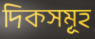
দিকসমূহ